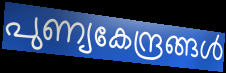
പുണ്യകേന്ദ്രങ്ങൾ